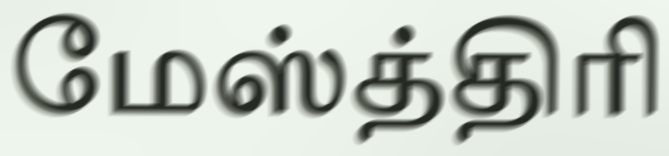
மேஸ்த்திரி